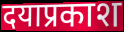
दयाप्रकाश